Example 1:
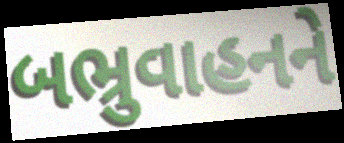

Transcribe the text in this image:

બભ્રુવાહનને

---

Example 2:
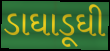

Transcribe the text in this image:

ડાઘાડૂઘી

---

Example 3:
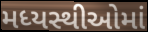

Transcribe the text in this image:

મધ્યસ્થીઓમાં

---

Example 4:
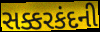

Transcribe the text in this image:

સક્કરકંદની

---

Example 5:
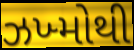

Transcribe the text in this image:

ઝખ્મોથી